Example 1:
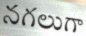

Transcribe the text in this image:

నగలుగా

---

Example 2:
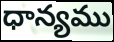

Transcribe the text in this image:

ధాన్యము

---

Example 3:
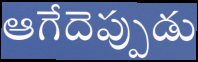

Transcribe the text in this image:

ఆగేదెప్పుడు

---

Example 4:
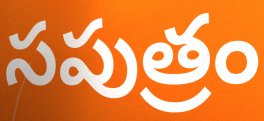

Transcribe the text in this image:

సపుత్రం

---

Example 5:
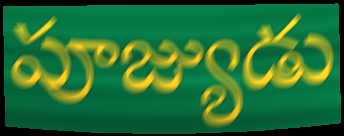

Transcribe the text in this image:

పూజ్యుడు